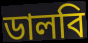
ডালবি